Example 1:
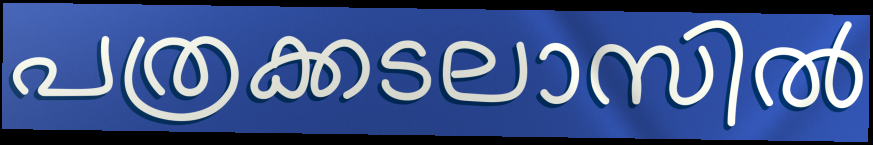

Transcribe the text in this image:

പത്രക്കടലാസിൽ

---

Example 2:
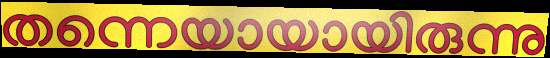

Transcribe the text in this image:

തന്നെയായായിരുന്നു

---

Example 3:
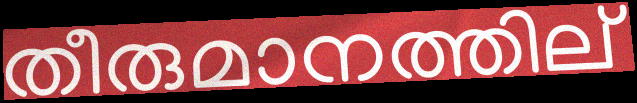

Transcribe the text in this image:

തീരുമാനത്തില്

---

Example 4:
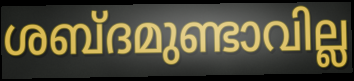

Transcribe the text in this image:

ശബ്ദമുണ്ടാവില്ല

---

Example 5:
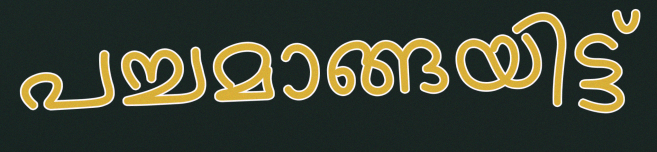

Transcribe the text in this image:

പച്ചമാങ്ങയിട്ട്